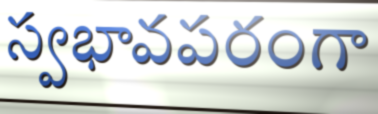
స్వభావపరంగా